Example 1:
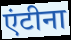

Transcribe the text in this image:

एंटीना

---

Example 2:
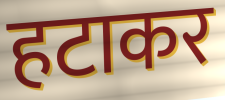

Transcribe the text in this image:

हटाकर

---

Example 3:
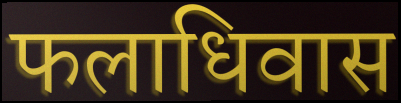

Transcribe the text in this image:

फलाधिवास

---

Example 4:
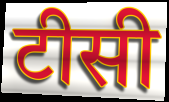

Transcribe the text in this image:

टीसी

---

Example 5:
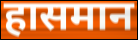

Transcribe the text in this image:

हासमान